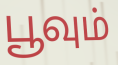
பூவும்